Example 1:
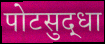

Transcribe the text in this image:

पोटसुद्धा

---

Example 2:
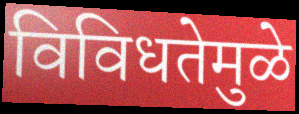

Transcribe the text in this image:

विविधतेमुळे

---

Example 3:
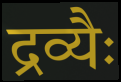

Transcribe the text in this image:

द्रव्यैः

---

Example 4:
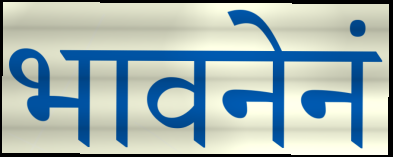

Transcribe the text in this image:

भावनेनं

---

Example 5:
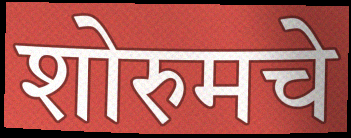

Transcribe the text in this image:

शोरुमचे